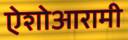
ऐशोआरामी